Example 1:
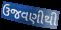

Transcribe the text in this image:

ઉજવણીથી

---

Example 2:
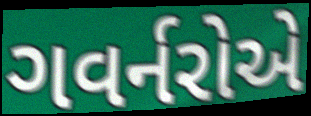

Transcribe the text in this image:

ગવર્નરોએ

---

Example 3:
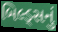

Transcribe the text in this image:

બિલ્ડ્સનું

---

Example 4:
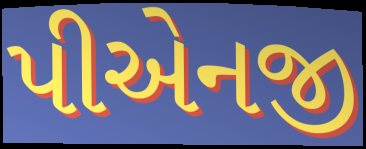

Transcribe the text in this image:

પીએનજી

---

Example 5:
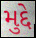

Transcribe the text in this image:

મુદ્દે